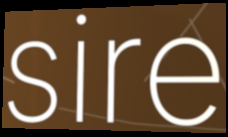
sire